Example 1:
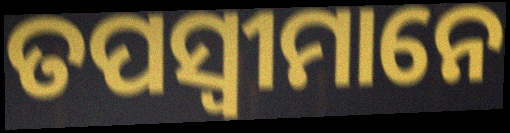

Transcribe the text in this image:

ତପସ୍ୱୀମାନେ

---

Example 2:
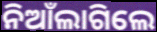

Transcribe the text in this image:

ନିଆଁଲାଗିଲେ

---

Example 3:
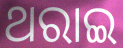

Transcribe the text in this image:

ଥରାଇ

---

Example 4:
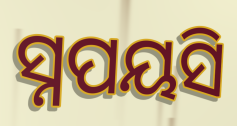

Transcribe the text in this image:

ସ୍ନପୟସି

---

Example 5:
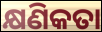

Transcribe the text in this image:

କ୍ଷଣିକତା